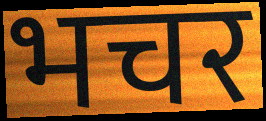
भचर